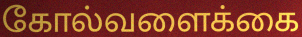
கோல்வளைக்கை